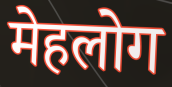
मेहलोग